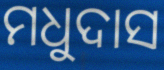
ମଧୁଦାସ